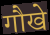
गौखे